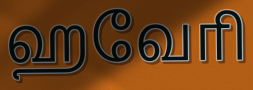
ஹவேரி